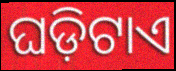
ଘଡ଼ିଟାଏ